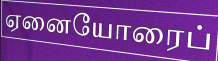
ஏனையோரைப்